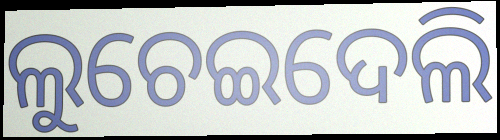
ଲୁଚେଇଦେଲି